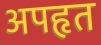
अपहृत